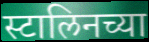
स्टालिनच्या